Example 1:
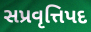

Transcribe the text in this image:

સપ્રવૃત્તિપદ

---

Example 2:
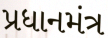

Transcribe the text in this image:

પ્રધાનમંત્ર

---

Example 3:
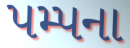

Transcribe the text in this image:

પમ્પના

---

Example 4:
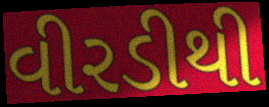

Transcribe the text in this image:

વીરડીથી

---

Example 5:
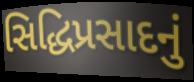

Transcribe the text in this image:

સિદ્ધિપ્રસાદનું